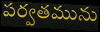
పర్వతమును